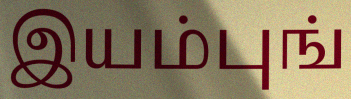
இயம்புங்